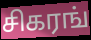
சிகரங்